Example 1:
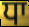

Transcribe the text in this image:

ਧਾ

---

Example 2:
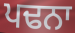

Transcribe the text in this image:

ਪਢਨਾ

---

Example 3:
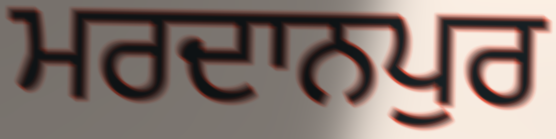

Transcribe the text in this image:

ਮਰਦਾਨਪੁਰ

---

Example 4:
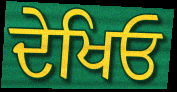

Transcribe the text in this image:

ਦੇਖਿਓ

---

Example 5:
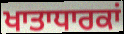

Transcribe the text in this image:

ਖਾਤਾਧਾਰਕਾਂ